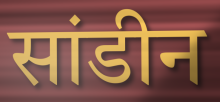
सांडीन